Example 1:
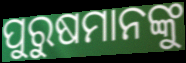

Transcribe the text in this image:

ପୁରୁଷମାନଙ୍କୁ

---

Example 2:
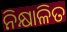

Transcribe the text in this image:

ନିକ୍ଷାଳିତ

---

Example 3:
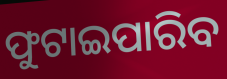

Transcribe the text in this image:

ଫୁଟାଇପାରିବ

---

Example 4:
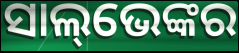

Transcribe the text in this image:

ସାଲ୍‌ଭେଙ୍କର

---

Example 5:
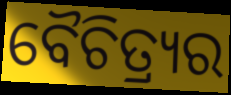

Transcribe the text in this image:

ବୈଚିତ୍ର୍ୟର